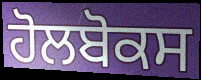
ਹੋਲਬੋਕਸ